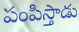
పంపిస్తాడు